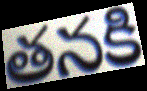
తనకి